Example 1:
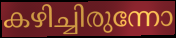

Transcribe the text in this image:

കഴിച്ചിരുന്നോ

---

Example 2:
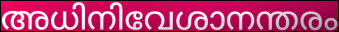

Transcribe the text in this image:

അധിനിവേശാനന്തരം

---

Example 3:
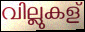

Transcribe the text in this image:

വില്ലുകള്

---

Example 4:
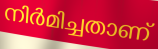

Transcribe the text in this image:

നിർമിച്ചതാണ്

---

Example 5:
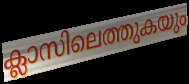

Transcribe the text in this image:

ക്ലാസിലെത്തുകയും